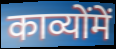
काव्योंमें